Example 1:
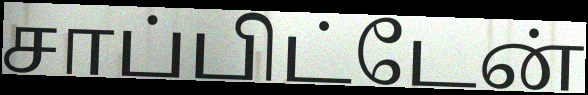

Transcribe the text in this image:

சாப்பிட்டேன்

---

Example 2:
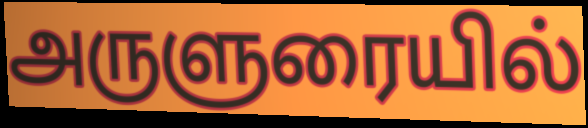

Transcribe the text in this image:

அருளுரையில்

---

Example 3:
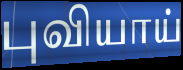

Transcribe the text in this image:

புவியாய்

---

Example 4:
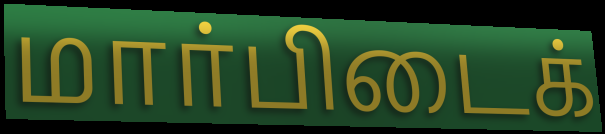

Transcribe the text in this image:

மார்பிடைக்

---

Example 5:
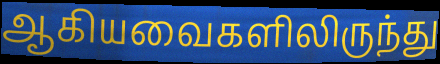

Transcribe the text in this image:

ஆகியவைகளிலிருந்து